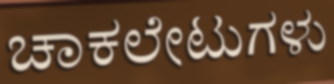
ಚಾಕಲೇಟುಗಳು